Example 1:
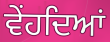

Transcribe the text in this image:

ਵੇਂਹਦਿਆਂ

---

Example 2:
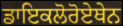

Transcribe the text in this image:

ਡਾਇਕਲੋਰੋਏਥੇਨ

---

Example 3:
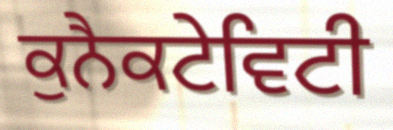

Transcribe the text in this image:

ਕੁਨੈਕਟੇਵਿਟੀ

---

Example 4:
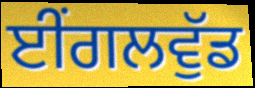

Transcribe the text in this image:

ਈਂਗਲਵੁੱਡ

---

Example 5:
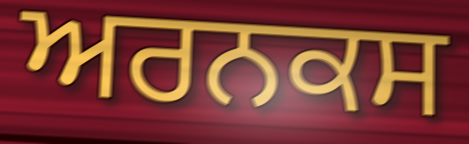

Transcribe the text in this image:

ਅਰਨਕਸ